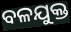
ବଳଯୁକ୍ତ